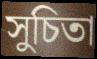
সুচিতা